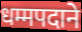
धम्मपदाने